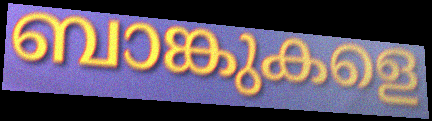
ബാങ്കുകളെ